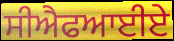
ਸੀਐਫਆਈਏ